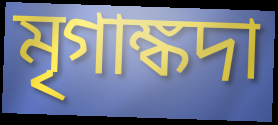
মৃগাঙ্কদা